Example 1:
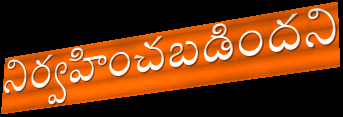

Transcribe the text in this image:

నిర్వహించబడిందని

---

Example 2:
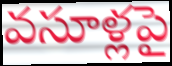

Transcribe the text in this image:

వసూళ్లపై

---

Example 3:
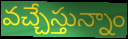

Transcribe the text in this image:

వచ్చేస్తున్నాం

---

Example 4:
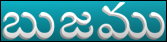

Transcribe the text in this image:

బుజము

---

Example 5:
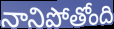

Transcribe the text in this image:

నానిపోతోంది